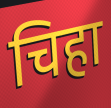
चिहा